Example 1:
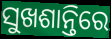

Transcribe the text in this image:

ସୁଖଶାନ୍ତିରେ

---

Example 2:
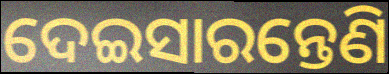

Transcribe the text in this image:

ଦେଇସାରନ୍ତେଣି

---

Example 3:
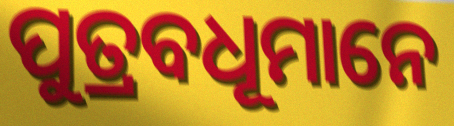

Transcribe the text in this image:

ପୁତ୍ରବଧୂମାନେ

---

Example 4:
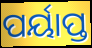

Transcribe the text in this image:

ପର୍ୟାପ୍ତ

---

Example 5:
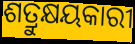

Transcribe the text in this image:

ଶତ୍ରୁକ୍ଷୟକାରୀ